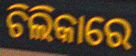
ଚିଲିକାରେ